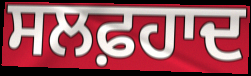
ਸਲਫ਼ਹਾਦ